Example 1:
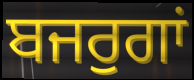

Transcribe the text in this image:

ਬਜਰੁਗਾਂ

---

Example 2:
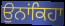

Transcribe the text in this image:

ਉਨਾਂਕਿਹਾ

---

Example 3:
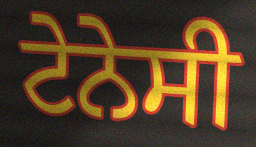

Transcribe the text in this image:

ਟੇਨੇਸੀ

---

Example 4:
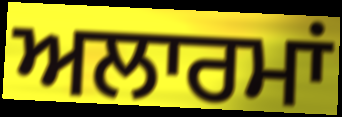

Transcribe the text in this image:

ਅਲਾਰਮਾਂ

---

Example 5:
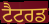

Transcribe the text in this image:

ਟੈਟਰਡ